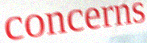
concerns